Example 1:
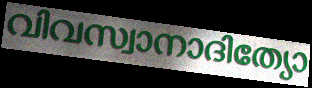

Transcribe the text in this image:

വിവസ്വാനാദിത്യോ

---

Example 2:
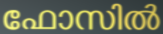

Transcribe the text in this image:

ഫോസിൽ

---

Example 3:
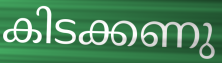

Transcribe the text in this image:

കിടക്കണു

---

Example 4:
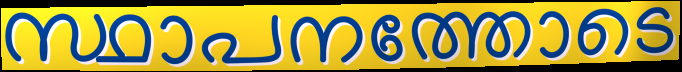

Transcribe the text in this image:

സ്ഥാപനത്തോടെ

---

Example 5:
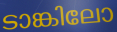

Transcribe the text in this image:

ടാങ്കിലോ